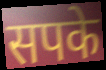
सपके